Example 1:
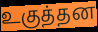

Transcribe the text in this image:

உகுத்தன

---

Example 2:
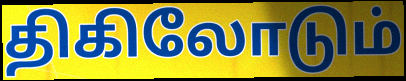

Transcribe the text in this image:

திகிலோடும்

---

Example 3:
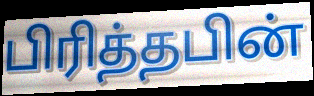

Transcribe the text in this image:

பிரித்தபின்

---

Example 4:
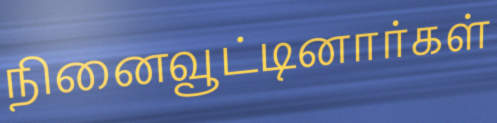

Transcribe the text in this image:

நினைவூட்டினார்கள்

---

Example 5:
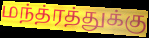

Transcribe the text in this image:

மந்த்ரத்துக்கு